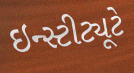
ઇન્સ્ટીટ્યૂટે